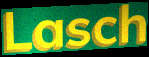
Lasch